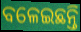
ବଳେଇଛନ୍ତି